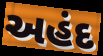
અહંદ